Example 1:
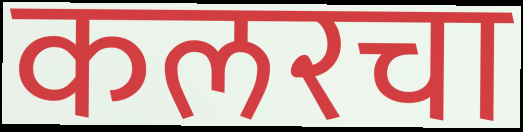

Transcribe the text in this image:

कलरचा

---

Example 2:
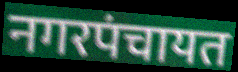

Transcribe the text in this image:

नगरपंचायत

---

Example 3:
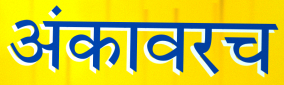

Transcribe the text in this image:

अंकावरच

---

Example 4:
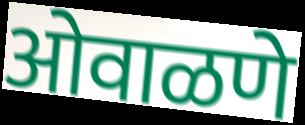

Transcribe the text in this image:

ओवाळणे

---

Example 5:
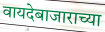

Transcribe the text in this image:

वायदेबाजाराच्या